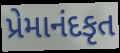
પ્રેમાનંદકૃત